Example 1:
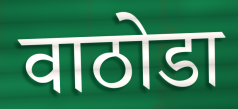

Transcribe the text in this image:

वाठोडा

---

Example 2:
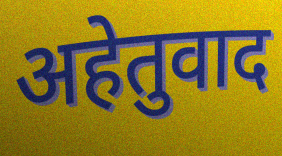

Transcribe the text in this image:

अहेतुवाद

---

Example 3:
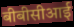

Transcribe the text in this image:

बीबीसीआई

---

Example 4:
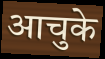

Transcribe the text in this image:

आचुके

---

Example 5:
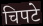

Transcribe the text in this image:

चिपटे